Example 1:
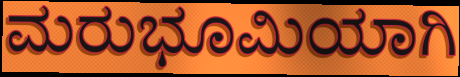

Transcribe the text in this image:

ಮರುಭೂಮಿಯಾಗಿ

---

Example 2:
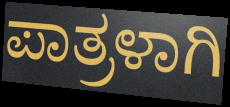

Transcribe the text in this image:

ಪಾತ್ರಳಾಗಿ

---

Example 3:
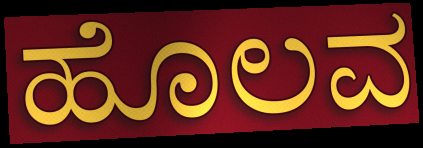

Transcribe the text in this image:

ಹೊಲವ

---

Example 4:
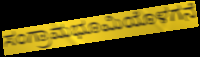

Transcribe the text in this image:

ಸಂಗ್ರಾಮಭೂಮಿಯೊಳಗನೆ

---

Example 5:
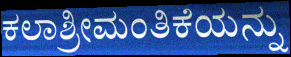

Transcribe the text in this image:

ಕಲಾಶ್ರೀಮಂತಿಕೆಯನ್ನು